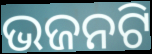
ଭଜନଟି